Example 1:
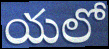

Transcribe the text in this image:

యలో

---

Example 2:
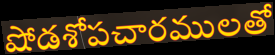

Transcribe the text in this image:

షోడశోపచారములతో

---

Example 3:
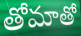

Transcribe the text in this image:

తోమాతో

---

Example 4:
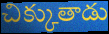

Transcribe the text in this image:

చిక్కుతాడు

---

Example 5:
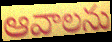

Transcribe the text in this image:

ఆవాలను